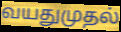
வயதுமுதல்